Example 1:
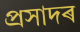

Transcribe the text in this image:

প্ৰসাদৰ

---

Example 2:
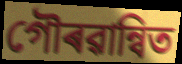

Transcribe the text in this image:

গৌৰৱান্বিত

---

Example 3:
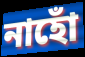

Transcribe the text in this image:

নাহোঁ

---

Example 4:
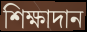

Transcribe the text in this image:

শিক্ষাদান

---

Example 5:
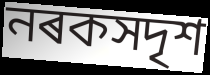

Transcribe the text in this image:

নৰকসদৃশ